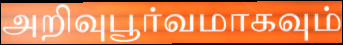
அறிவுபூர்வமாகவும்